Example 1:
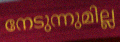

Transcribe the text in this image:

നേടുന്നുമില്ല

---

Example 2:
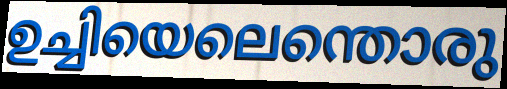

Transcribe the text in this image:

ഉച്ചിയെലെന്തൊരു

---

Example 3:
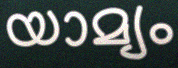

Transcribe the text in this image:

യാമ്യം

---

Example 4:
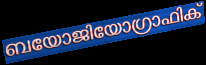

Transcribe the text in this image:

ബയോജിയോഗ്രാഫിക്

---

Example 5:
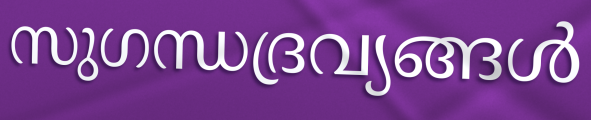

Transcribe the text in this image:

സുഗന്ധദ്രവ്യങ്ങൾ